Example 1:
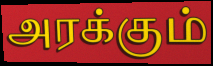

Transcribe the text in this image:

அரக்கும்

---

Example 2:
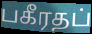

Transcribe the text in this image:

பகீரதப்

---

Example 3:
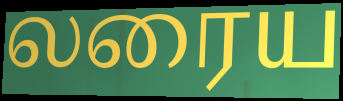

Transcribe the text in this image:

லரைய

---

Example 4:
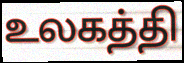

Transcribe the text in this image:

உலகத்தி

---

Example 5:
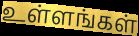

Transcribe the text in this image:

உள்ளங்கள்